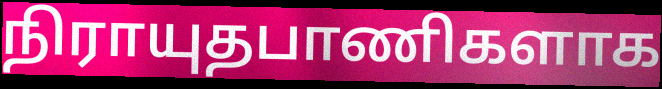
நிராயுதபாணிகளாக